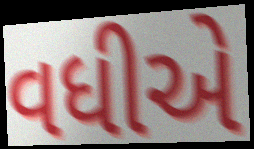
વધીએ